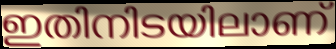
ഇതിനിടയിലാണ്